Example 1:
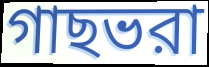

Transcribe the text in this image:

গাছভরা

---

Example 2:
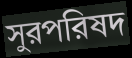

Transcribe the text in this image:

সুরপরিষদ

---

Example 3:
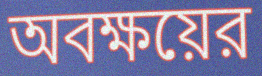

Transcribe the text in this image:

অবক্ষয়ের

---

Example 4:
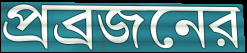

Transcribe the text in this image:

প্রব্রজনের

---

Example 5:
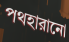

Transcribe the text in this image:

পথহারানো